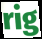
rig